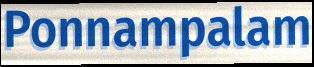
Ponnampalam